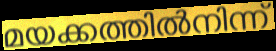
മയക്കത്തിൽനിന്ന്